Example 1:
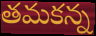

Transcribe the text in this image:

తమకన్న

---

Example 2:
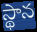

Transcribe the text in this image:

స్థాన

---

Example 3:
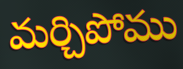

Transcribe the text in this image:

మర్చిపోము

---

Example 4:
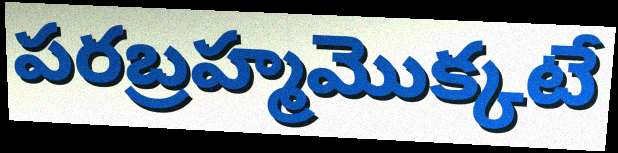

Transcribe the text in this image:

పరబ్రహ్మమొక్కటే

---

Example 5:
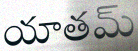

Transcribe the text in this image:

యాతమ్